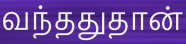
வந்ததுதான்